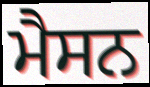
ਮੈਸਨ